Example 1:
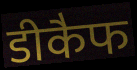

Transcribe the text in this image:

डीकैफ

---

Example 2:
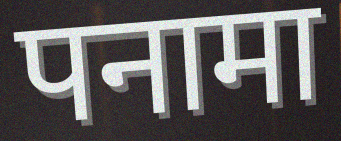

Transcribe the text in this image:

पनामा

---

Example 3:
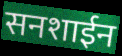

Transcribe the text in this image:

सनशाईन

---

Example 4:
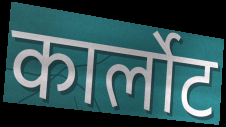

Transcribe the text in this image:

कार्लोट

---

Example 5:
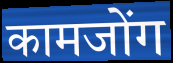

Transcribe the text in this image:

कामजोंग